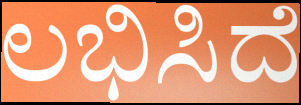
ಲಭಿಸಿದೆ